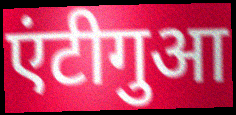
एंटीगुआ